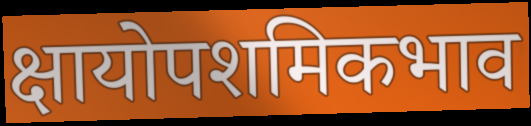
क्षायोपशमिकभाव